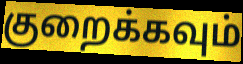
குறைக்கவும்